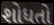
શોધતો